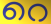
റെ